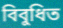
বিবুধিত